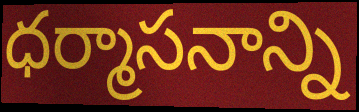
ధర్మాసనాన్ని